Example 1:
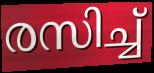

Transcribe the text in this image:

രസിച്ച്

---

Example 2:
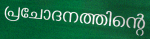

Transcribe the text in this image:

പ്രചോദനത്തിന്റെ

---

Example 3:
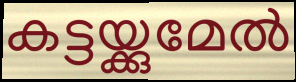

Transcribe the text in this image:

കട്ടയ്ക്കുമേൽ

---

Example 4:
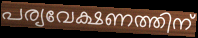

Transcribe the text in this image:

പര്യവേക്ഷണത്തിന്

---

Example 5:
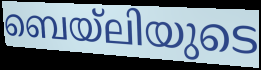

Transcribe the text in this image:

ബെയ്ലിയുടെ